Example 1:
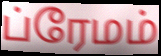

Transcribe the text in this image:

ப்ரேமம்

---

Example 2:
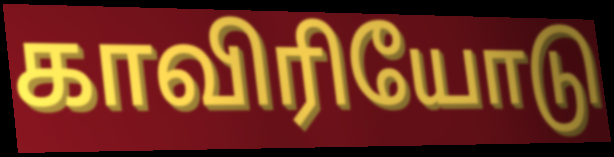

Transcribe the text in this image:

காவிரியோடு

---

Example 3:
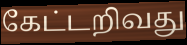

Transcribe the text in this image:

கேட்டறிவது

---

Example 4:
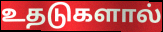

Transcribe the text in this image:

உதடுகளால்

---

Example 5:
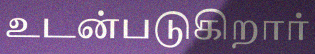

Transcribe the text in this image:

உடன்படுகிறார்